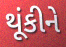
થૂંકીને